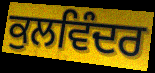
ਕੁਲਵਿੰਦਰ